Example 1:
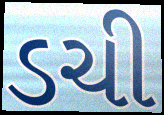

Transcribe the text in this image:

ડચી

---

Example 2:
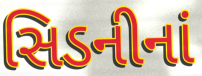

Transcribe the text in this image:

સિડનીનાં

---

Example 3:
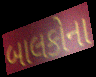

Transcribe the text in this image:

બાલકોના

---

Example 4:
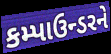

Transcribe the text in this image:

કમ્પાઉન્ડરને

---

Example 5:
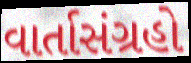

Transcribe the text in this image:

વાર્તાસંગ્રહો